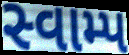
સ્વામ્પ